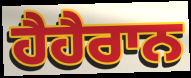
ਹੈਹੈਰਾਨ